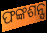
ଫଙ୍କଶନ୍ସ